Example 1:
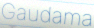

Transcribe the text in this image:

Gaudama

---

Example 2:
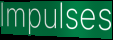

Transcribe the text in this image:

Impulses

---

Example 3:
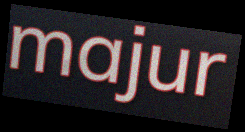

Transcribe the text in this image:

majur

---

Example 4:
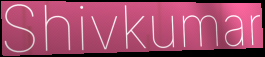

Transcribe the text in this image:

Shivkumar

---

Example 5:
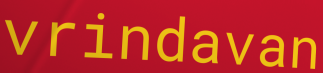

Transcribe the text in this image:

vrindavan